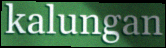
kalungan